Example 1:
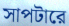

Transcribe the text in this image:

সাপটারে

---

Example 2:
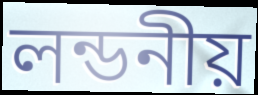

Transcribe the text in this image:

লন্ডনীয়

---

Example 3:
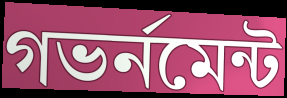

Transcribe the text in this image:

গভর্নমেন্ট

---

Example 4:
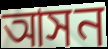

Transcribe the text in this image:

আসন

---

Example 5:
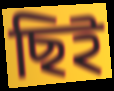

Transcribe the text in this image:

ছিই